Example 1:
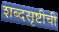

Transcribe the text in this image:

शब्दसृष्टीची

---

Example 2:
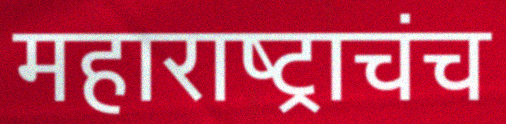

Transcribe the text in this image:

महाराष्ट्राचंच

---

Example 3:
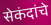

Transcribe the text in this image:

सेकंदांचे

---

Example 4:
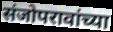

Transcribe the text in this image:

संजोपरावांच्या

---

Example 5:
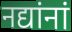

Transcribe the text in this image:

नद्यांनां